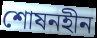
শোষনহীন